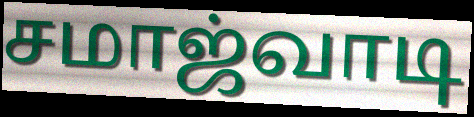
சமாஜ்வாடி